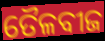
ତୈଳବୀଜ